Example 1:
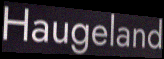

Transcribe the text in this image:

Haugeland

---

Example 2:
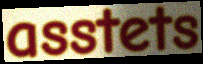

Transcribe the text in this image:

asstets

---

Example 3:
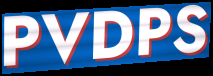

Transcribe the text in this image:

PVDPS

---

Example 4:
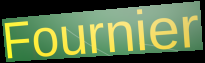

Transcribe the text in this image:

Fournier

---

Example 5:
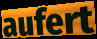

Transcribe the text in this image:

aufert